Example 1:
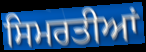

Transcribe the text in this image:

ਸਿਮਰਤੀਆਂ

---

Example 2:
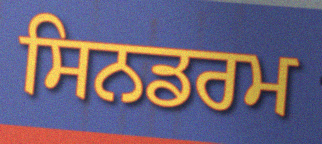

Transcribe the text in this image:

ਸਿਨਡਰਮ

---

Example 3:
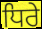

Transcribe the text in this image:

ਧਿਰੇ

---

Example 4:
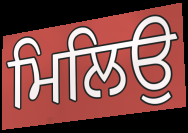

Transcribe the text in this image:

ਮਿਲਿਉ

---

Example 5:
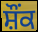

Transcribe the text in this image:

ਸ਼ੌਂਕ